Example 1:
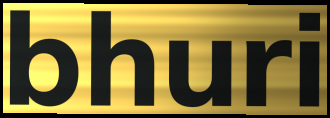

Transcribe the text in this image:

bhuri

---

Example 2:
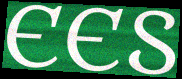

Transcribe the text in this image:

EES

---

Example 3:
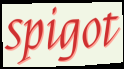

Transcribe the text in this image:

spigot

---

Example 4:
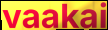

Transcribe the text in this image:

vaakai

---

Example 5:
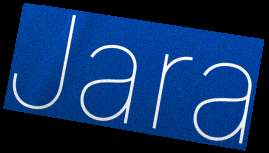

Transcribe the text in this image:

Jara